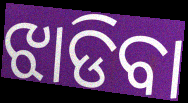
ଝାଡିବା